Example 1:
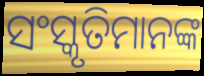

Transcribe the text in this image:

ସଂସ୍କୃତିମାନଙ୍କ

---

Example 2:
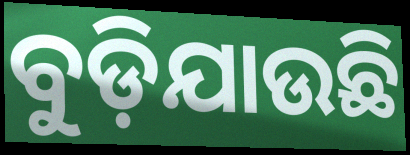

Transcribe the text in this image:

ବୁଡ଼ିଯାଉଛି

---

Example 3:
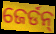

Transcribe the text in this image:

ଜେର୍ଡନ୍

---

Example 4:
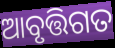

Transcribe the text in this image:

ଆବୃତ୍ତିଗତ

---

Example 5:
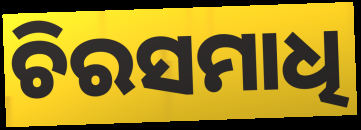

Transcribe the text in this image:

ଚିରସମାଧି